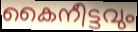
കൈനീട്ടവും